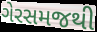
ગેરસમજથી